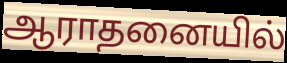
ஆராதனையில்